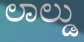
ಲಾಲ್ಡು